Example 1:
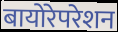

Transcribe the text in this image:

बायोरेपरेशन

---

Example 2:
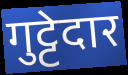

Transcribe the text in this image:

गुट्टेदार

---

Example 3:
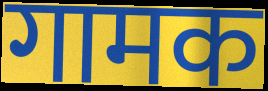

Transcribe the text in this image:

गामक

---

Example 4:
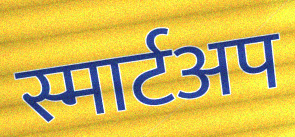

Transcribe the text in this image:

स्मार्टअप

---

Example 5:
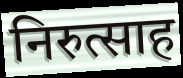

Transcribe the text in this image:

निरुत्साह